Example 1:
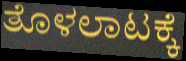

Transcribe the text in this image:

ತೊಳಲಾಟಕ್ಕೆ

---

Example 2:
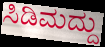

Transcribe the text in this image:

ಸಿಡಿಮದ್ದು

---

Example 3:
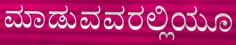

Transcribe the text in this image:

ಮಾಡುವವರಲ್ಲಿಯೂ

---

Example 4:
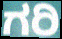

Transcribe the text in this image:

ಗರಿ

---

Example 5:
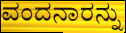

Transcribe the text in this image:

ವಂದನಾರನ್ನು